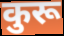
कुरू